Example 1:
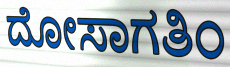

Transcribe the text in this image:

ದೋಸಾಗತಿಂ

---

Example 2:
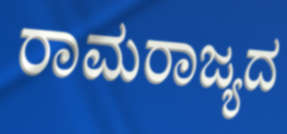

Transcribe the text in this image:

ರಾಮರಾಜ್ಯದ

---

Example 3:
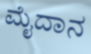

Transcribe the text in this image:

ಮೈದಾನ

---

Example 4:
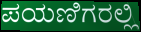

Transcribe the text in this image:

ಪಯಣಿಗರಲ್ಲಿ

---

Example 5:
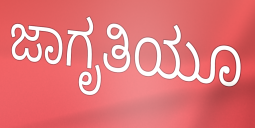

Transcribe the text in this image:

ಜಾಗೃತಿಯೂ